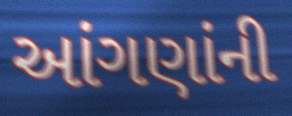
આંગણાંની